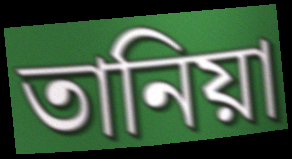
তানিয়া